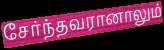
சேர்ந்தவரானாலும்